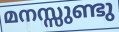
മനസ്സുണ്ടു